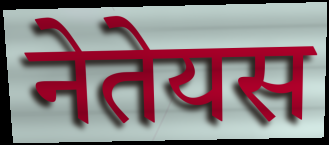
नेतेयस